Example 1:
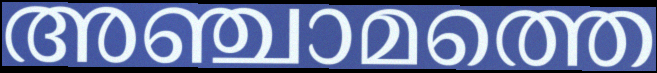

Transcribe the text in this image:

അഞ്ചാമത്തെ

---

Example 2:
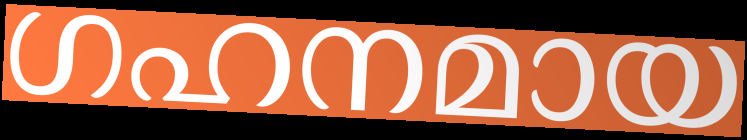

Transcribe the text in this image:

ഗഹനമായ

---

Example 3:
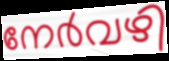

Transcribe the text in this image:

നേർവഴി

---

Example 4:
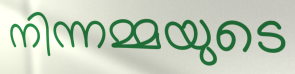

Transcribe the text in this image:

നിന്നമ്മയുടെ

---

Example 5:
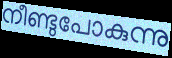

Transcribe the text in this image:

നീണ്ടുപോകുന്നു